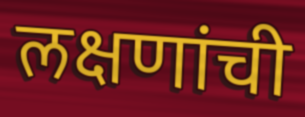
लक्षणांची